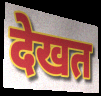
देखत